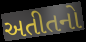
અતીતનો